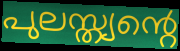
പുലസ്ത്യന്റെ